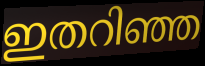
ഇതറിഞ്ഞ